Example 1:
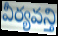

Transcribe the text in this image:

వీర్యవన్తి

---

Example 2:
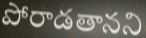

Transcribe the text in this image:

పోరాడతానని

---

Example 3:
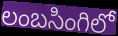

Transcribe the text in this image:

లంబసింగిలో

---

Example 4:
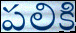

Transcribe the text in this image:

పలికి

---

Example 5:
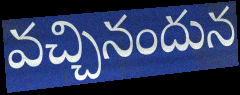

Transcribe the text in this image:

వచ్చినందున